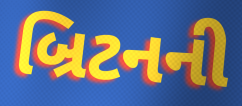
બ્રિટનની